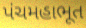
પંચમહાભૂત